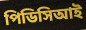
পিডিসিআই